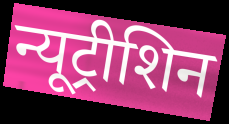
न्यूट्रीशिन